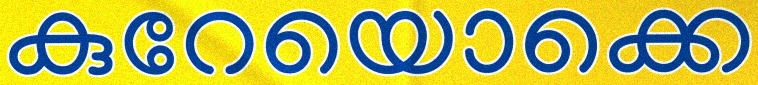
കുറേയൊക്കെ